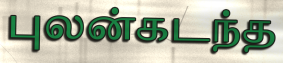
புலன்கடந்த